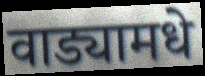
वाड्यामधे